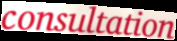
consultation